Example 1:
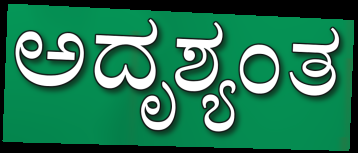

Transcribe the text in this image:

ಅದೃಶ್ಯಂತ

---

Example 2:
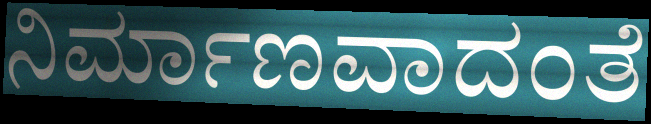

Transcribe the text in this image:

ನಿರ್ಮಾಣವಾದಂತೆ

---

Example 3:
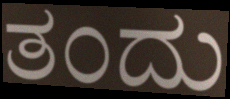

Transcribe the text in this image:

ತಂದು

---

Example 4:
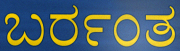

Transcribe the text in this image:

ಬರ್ರಂತ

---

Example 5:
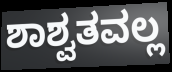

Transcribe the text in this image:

ಶಾಶ್ವತವಲ್ಲ